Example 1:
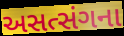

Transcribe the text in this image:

અસત્સંગના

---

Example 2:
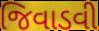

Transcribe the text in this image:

જિવાડવી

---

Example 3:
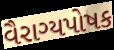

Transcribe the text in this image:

વૈરાગ્યપોષક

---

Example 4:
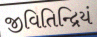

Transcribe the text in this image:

જીવિતિન્દ્રિયં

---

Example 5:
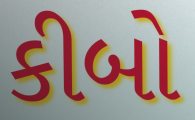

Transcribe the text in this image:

કીબો